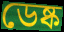
ডেষ্ক